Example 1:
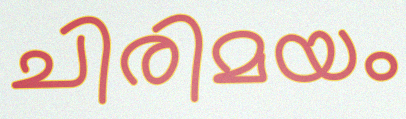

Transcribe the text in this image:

ചിരിമയം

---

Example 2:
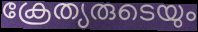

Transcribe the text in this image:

ക്രേത്യരുടെയും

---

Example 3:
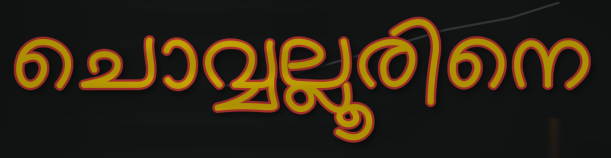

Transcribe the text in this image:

ചൊവ്വല്ലൂരിനെ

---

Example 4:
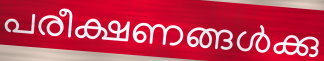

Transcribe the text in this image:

പരീക്ഷണങ്ങൾക്കു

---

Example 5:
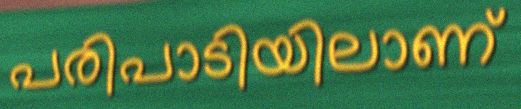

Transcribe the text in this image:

പരിപാടിയിലാണ്